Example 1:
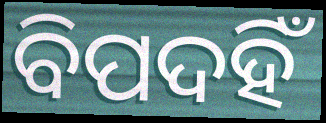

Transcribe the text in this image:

ବିପଦହିଁ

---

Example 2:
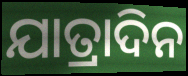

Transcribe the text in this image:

ଯାତ୍ରାଦିନ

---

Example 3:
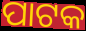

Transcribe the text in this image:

ପାଟକ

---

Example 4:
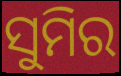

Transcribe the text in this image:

ସୁମିର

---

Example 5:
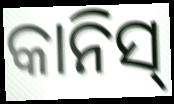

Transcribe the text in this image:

କାନିସ୍